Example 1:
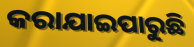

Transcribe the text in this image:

କରାଯାଇପାରୁଛି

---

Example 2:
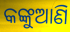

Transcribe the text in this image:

କଙ୍କୁଆଣି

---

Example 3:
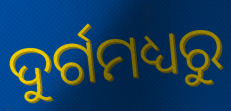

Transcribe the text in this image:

ଦୁର୍ଗମଧ୍ୟରୁ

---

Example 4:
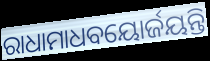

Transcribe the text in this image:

ରାଧାମାଧବୟୋର୍ଜୟନ୍ତି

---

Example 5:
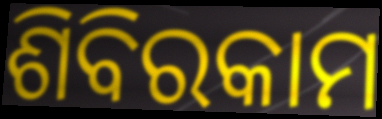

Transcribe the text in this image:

ଶିବିରକାମ